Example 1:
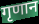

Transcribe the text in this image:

गृणान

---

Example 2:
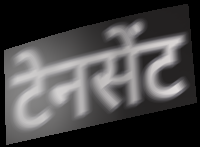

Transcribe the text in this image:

टेनसेंट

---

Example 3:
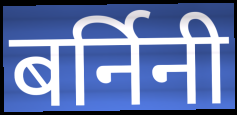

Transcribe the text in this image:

बर्निनी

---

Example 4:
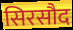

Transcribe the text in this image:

सिरसौद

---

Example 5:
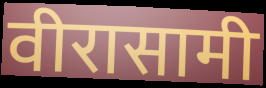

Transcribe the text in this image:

वीरासामी